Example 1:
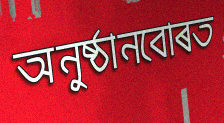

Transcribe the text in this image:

অনুষ্ঠানবোৰত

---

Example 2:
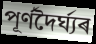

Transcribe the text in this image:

পূৰ্ণদৈৰ্ঘ্যৰ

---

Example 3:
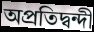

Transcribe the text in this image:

অপ্ৰতিদ্বন্দী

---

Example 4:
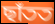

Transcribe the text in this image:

ছাঁতত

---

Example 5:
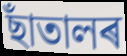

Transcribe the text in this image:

ছাঁতালৰ